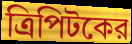
ত্রিপিটকের